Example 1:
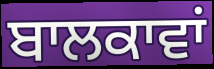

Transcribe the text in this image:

ਬਾਲਕਾਵਾਂ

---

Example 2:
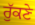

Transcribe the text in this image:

ਰੁੱਕਣੇ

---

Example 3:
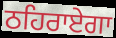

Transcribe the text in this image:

ਠਹਿਰਾਏਗਾ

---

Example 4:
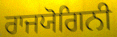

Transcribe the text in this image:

ਰਾਜਯੋਗਿਨੀ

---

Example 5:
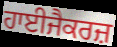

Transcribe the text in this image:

ਹਾਈਜੈਕਰਜ਼